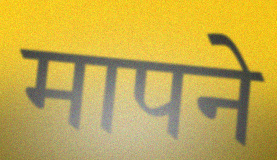
मापने